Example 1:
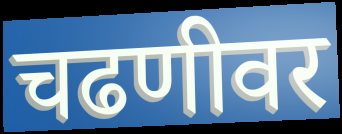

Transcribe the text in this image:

चढणीवर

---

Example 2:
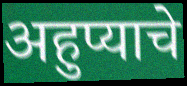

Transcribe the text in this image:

अहुप्याचे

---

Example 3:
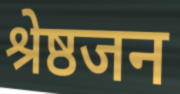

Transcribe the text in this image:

श्रेष्ठजन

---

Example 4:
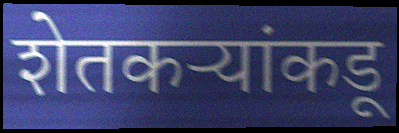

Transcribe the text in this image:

शेतकऱ्यांकडू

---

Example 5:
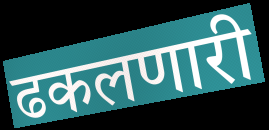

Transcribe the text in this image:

ढकलणारी